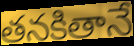
తనకితానే